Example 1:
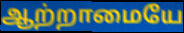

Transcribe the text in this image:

ஆற்றாமையே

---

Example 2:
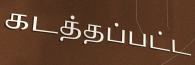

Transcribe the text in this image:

கடத்தப்பட்ட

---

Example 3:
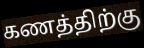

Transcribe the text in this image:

கணத்திற்கு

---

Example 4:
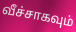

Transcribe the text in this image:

வீச்சாகவும்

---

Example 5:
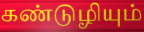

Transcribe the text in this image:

கண்டுழியும்